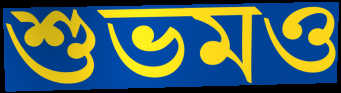
শুভমও